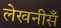
लेखनीसँ